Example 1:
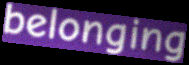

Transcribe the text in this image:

belonging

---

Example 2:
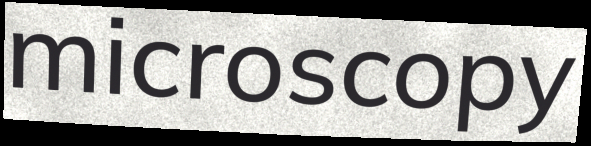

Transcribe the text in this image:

microscopy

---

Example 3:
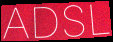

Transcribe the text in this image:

ADSL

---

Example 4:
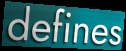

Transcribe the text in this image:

defines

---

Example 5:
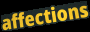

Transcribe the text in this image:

affections